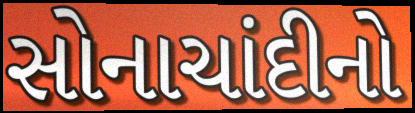
સોનાચાંદીનો